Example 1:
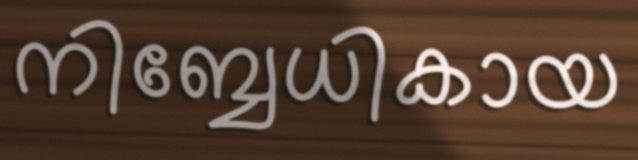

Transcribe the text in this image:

നിബ്ബേധികായ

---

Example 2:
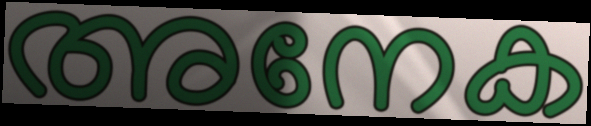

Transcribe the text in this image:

അനേക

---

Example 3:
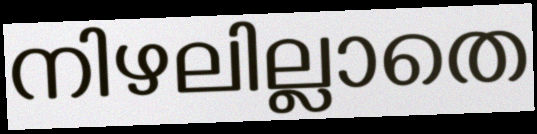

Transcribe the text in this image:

നിഴലില്ലാതെ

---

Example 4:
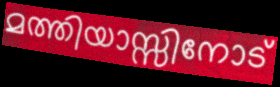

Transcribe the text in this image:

മത്തിയാസ്സിനോട്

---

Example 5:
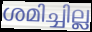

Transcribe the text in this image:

ശമിച്ചില്ല